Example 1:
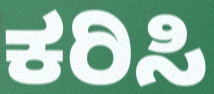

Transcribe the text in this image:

ಕರಿಸಿ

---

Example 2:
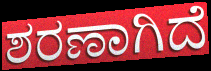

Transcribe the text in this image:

ಶರಣಾಗಿದೆ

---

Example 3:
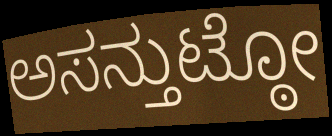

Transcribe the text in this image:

ಅಸನ್ತುಟ್ಠೋ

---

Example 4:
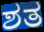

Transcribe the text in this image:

ಶತ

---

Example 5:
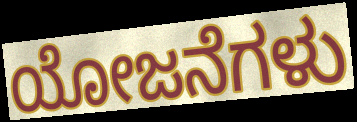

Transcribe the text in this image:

ಯೋಜನೆಗಳು